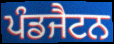
ਪੰਡਜੈਟਨ